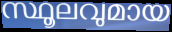
സ്ഥൂലവുമായ